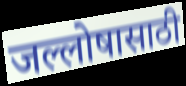
जल्लोषासाठी